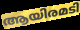
ആയിരമടി